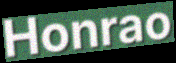
Honrao